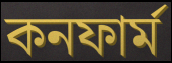
কনফার্ম